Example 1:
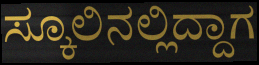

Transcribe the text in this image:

ಸ್ಕೂಲಿನಲ್ಲಿದ್ದಾಗ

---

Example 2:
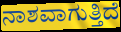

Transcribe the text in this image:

ನಾಶವಾಗುತ್ತಿದೆ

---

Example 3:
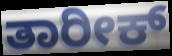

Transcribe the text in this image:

ತಾರೀಕ್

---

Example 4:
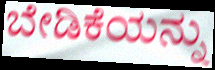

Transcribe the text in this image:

ಬೇಡಿಕೆಯನ್ನು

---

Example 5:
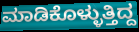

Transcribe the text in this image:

ಮಾಡಿಕೊಳ್ಳುತ್ತಿದ್ದ